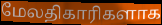
மேலதிகாரிகளாக